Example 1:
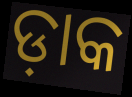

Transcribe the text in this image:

ଡ଼ାକ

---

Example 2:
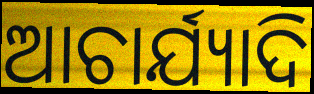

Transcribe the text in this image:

ଆଚାର୍ଯ୍ୟାଦି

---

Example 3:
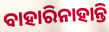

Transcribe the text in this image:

ବାହାରିନାହାନ୍ତି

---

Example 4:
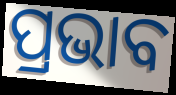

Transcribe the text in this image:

ପ୍ରଭାବ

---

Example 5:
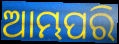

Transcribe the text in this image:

ଆମ୍ଭପରି